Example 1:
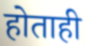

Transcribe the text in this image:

होताही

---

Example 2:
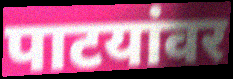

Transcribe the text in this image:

पाटयांवर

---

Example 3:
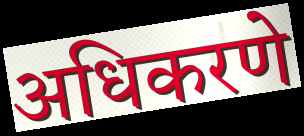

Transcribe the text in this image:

अधिकरणे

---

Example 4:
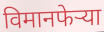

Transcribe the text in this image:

विमानफेऱ्या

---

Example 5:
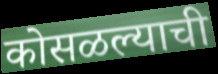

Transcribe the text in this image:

कोसळल्याची